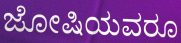
ಜೋಷಿಯವರೂ